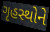
ગૃહસ્થોને